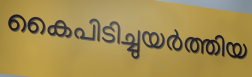
കൈപിടിച്ചുയർത്തിയ